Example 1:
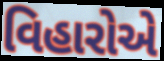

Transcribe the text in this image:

વિહારોએ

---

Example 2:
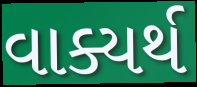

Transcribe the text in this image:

વાક્યર્થ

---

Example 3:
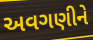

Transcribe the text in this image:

અવગણીને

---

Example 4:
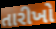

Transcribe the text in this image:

તારીખો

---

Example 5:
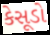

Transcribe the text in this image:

કેસૂડો